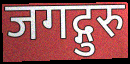
जगद्गुरु